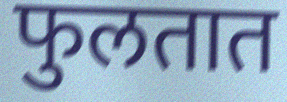
फुलतात